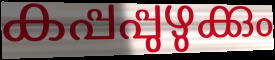
കപ്പപ്പുഴുക്കും